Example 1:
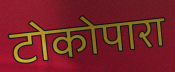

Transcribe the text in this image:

टोकोपारा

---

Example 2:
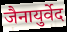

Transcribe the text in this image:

जैनायुर्वेद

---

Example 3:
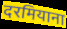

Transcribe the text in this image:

दरमियाना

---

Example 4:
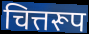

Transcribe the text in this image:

चित्तरूप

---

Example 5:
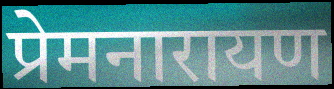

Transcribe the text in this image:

प्रेमनारायण